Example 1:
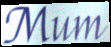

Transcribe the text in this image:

Mum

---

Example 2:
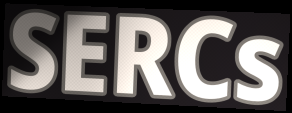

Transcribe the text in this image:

SERCs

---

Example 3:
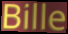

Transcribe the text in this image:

Bille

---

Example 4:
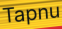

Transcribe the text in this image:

Tapnu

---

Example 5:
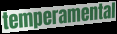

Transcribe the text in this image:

temperamental